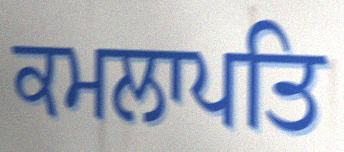
ਕਮਲਾਪਤਿ